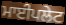
ਮਾਈਪਲੇਟ